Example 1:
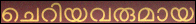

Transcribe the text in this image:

ചെറിയവരുമായ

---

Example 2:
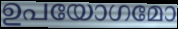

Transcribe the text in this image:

ഉപയോഗമോ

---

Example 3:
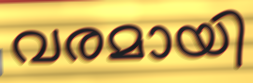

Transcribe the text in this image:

വരമായി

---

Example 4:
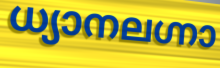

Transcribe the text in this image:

ധ്യാനലഗ്നാ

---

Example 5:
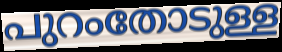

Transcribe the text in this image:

പുറംതോടുള്ള